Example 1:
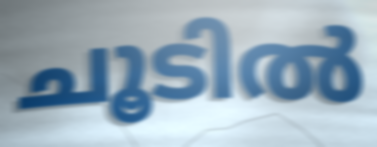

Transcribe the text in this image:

ചൂടിൽ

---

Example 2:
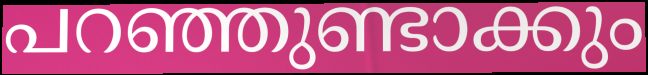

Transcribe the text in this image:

പറഞ്ഞുണ്ടാക്കും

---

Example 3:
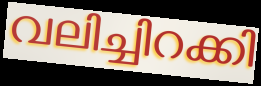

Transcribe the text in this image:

വലിച്ചിറക്കി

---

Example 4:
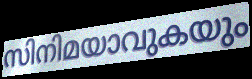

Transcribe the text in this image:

സിനിമയാവുകയും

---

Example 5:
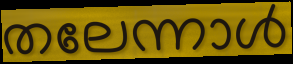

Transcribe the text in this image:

തലേന്നാൾ